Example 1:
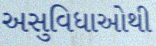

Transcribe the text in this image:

અસુવિધાઓથી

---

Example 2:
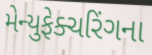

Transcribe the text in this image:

મેન્યુફેક્ચરિંગના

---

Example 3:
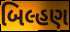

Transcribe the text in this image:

બિલ્હણ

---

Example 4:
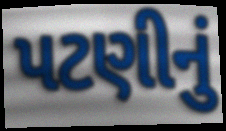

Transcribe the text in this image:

પટણીનું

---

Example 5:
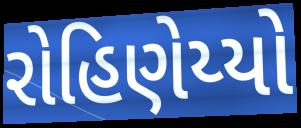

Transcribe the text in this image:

રોહિણેય્યો